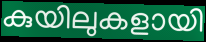
കുയിലുകളായി